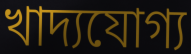
খাদ্যযোগ্য